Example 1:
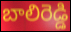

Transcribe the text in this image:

బాలిరెడ్డి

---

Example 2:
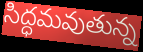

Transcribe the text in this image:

సిద్ధమవుతున్న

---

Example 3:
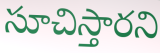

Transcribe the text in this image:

సూచిస్తారని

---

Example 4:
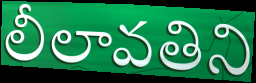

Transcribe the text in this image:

లీలావతిని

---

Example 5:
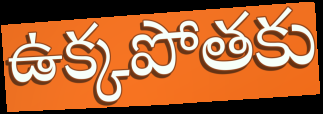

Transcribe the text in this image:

ఉక్కపోతకు